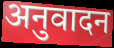
अनुवादन